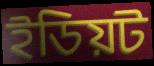
ইডিয়ট